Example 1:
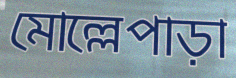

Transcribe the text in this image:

মোল্লেপাড়া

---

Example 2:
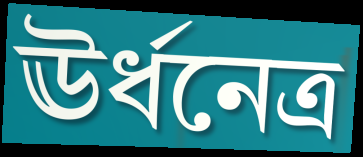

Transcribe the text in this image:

ঊর্ধনেত্র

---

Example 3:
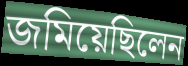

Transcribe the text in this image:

জমিয়েছিলেন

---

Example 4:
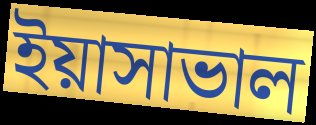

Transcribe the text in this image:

ইয়াসাভাল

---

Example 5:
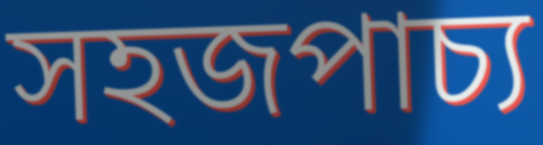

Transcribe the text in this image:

সহজপাচ্য